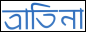
ত্রাতিনা